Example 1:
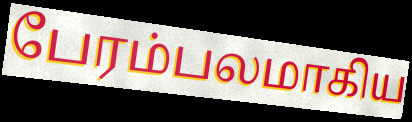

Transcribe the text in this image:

பேரம்பலமாகிய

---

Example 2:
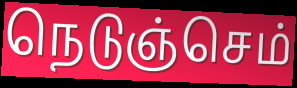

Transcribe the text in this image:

நெடுஞ்செம்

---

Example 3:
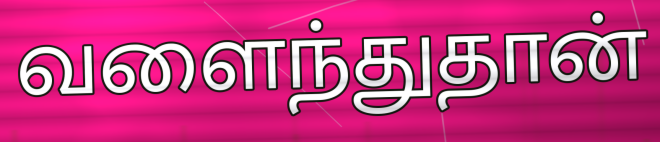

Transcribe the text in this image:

வளைந்துதான்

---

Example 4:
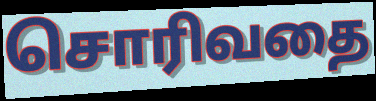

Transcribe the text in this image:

சொரிவதை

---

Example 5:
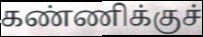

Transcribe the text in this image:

கண்ணிக்குச்